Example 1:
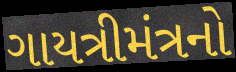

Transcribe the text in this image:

ગાયત્રીમંત્રનો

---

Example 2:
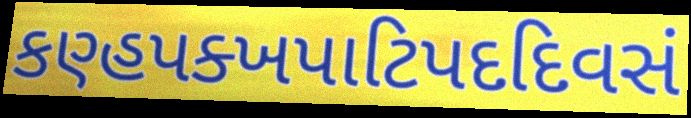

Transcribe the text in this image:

કણ્હપક્ખપાટિપદદિવસં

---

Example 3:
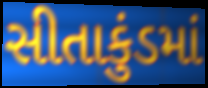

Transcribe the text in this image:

સીતાકુંડમાં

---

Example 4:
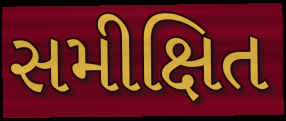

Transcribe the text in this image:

સમીક્ષિત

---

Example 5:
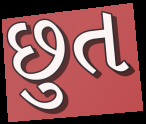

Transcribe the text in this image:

છુત